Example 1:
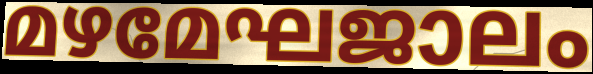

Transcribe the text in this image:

മഴമേഘജാലം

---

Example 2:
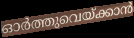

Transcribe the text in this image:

ഓർത്തുവെയ്ക്കാൻ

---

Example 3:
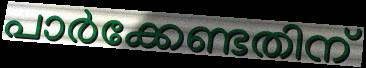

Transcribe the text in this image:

പാർക്കേണ്ടതിന്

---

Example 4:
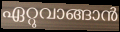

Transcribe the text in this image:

ഏറ്റുവാങ്ങാൻ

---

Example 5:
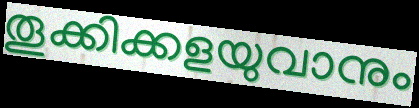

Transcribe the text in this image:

തൂക്കിക്കളയുവാനും